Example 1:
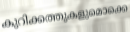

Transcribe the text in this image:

കുറിക്കത്തുകളുമൊക്കെ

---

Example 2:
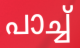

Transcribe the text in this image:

പാച്ച്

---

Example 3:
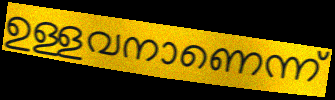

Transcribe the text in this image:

ഉള്ളവനാണെന്ന്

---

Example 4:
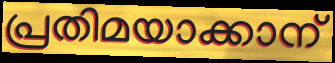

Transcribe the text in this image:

പ്രതിമയാക്കാന്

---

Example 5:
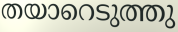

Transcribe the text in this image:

തയാറെടുത്തു